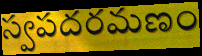
స్వపదరమణం